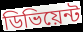
ডিভিয়েন্ট